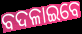
ବଦଳାଇବେ